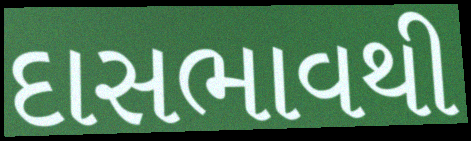
દાસભાવથી